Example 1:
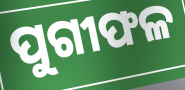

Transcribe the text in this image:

ପୁଗୀଫଳ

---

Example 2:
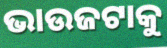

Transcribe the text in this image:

ଭାଉଜଟାକୁ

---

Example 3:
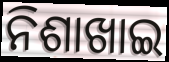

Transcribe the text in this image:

ନିଶାଖାଇ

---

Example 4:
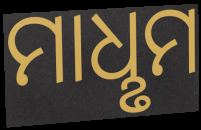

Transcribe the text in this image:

ମାଧୢମ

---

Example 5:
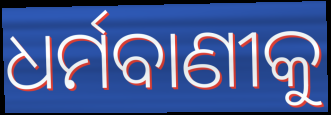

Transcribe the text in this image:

ଧର୍ମବାଣୀକୁ